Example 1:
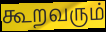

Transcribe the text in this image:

கூறவரும்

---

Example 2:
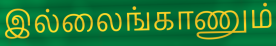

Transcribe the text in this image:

இல்லைங்காணும்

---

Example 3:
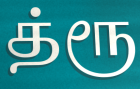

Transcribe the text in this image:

த்ரூ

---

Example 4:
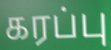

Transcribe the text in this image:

கரப்பு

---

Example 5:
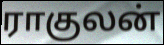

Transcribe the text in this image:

ராகுலன்